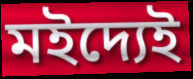
মইদ্যেই